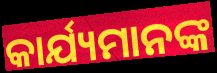
କାର୍ଯ୍ୟମାନଙ୍କ